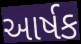
આર્ષક